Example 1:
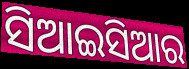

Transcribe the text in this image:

ସିଆଇସିଆର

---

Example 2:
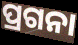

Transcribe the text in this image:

ପ୍ରଗନା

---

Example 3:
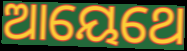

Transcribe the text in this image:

ଆୟେଥେ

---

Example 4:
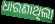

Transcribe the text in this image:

ଧାରଣାଥିଲା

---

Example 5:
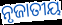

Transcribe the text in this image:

ନୃଜାତୀୟ